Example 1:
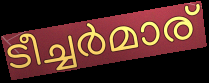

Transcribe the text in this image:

ടീച്ചർമാര്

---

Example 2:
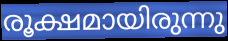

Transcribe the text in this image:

രൂക്ഷമായിരുന്നു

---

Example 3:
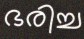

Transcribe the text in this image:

ഭരിച്ച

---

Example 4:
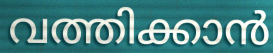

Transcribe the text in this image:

വത്തിക്കാൻ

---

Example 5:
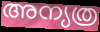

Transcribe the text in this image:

അന്യത്ര